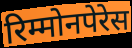
रिम्मोनपेरेस